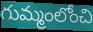
గుమ్మంలోంచి